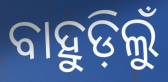
ବାହୁଡ଼ିଲୁଁ